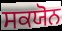
ਸਕਯੋਨ